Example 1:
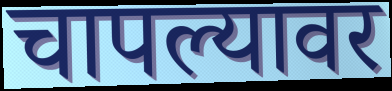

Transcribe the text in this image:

चापल्यावर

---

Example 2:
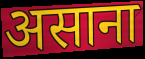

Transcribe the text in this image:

असाना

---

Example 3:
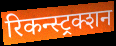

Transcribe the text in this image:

रिकन्स्ट्रक्शन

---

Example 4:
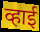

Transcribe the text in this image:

व्हाई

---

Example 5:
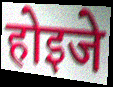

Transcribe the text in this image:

होइजे